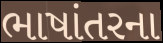
ભાષાંતરના